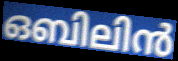
ഒബിലിൻ